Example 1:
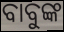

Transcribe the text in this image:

ବାବୁଙ୍କ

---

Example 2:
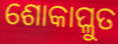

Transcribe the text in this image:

ଶୋକାପ୍ଳୁତ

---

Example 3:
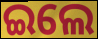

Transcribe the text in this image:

ଇଲେ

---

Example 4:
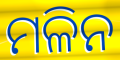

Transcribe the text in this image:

ମଳିନ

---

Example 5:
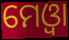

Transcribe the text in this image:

ମେଓ୍ୱା